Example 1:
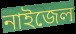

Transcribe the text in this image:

নাইজেল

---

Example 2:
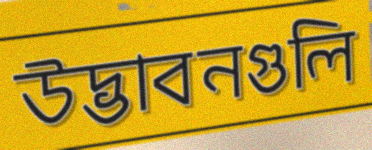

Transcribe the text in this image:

উদ্ভাবনগুলি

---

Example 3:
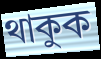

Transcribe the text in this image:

থাকুক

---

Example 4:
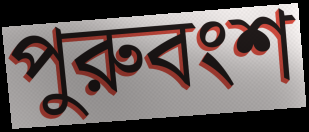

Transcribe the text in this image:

পুরুবংশ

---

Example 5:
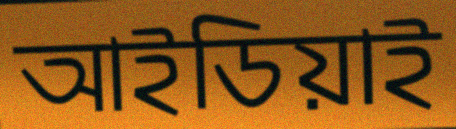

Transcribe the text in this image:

আইডিয়াই